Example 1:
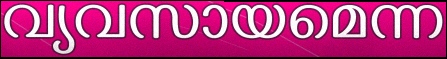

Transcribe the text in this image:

വ്യവസായമെന്ന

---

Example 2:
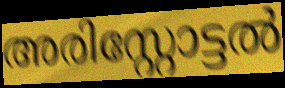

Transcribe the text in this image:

അരിസ്റ്റോട്ടൽ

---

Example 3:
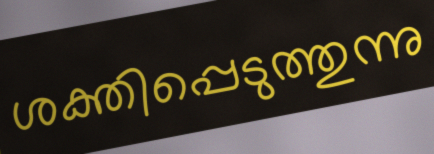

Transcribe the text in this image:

ശക്തിപ്പെടുത്തുന്നു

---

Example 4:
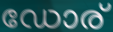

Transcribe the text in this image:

ഡോര്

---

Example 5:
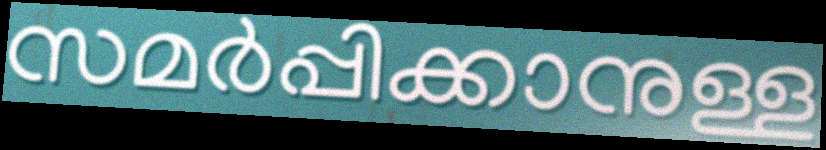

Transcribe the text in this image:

സമർപ്പിക്കാനുള്ള